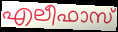
എലീഫാസ്